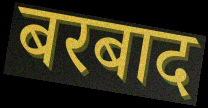
बरबाद